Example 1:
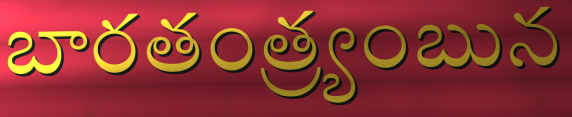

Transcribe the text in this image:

బారతంత్ర్యంబున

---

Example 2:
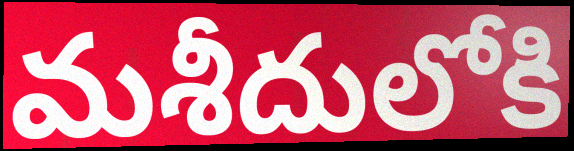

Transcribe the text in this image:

మశీదులోకి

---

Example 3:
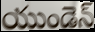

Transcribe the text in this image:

యుండెన్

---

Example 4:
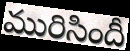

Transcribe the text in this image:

మురిసిందీ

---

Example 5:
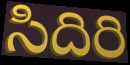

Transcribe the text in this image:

సిదిరి